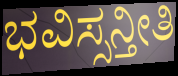
ಭವಿಸ್ಸನ್ತೀತಿ